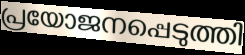
പ്രയോജനപ്പെടുത്തി